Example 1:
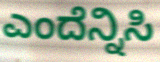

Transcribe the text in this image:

ಎಂದೆನ್ನಿಸಿ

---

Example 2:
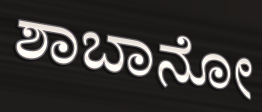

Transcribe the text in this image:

ಶಾಬಾನೋ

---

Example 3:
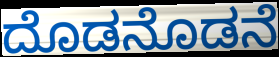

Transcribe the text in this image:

ದೊಡನೊಡನೆ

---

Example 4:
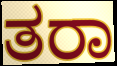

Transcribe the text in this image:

ತರಾ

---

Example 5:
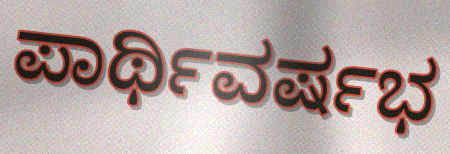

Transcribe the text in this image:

ಪಾರ್ಥಿವರ್ಷಭ